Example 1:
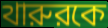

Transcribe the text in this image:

থারুরকে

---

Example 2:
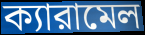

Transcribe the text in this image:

ক্যারামেল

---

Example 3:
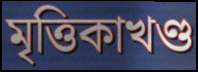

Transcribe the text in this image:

মৃত্তিকাখণ্ড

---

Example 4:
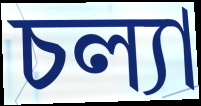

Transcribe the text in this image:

চল্যা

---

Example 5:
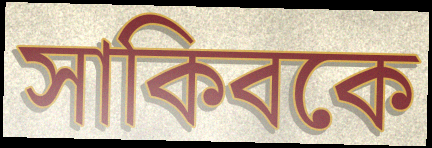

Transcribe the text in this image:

সাকিবকে